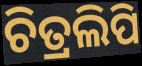
ଚିତ୍ରଲିପି